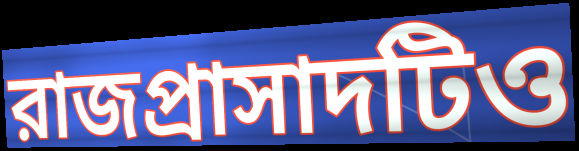
রাজপ্রাসাদটিও